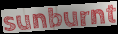
sunburnt